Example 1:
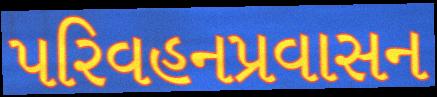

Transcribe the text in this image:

પરિવહનપ્રવાસન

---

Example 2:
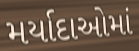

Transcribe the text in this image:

મર્યાદાઓમાં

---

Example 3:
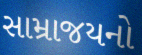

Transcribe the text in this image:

સામ્રાજયનો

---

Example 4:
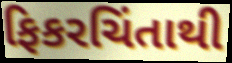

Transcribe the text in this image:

ફિકરચિંતાથી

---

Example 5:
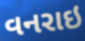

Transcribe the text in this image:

વનરાઇ